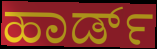
ಹಾರ್ಡ್